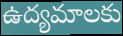
ఉద్యమాలకు